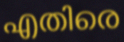
എതിരെ